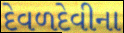
દેવળદેવીના